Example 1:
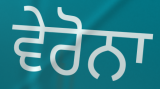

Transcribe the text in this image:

ਵੇਰੋਨਾ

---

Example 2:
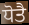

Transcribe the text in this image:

ਧੋਤੈ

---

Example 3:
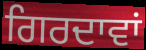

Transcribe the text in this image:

ਗਿਰਦਾਵਾਂ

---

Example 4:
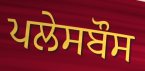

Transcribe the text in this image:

ਪਲੇਸਬੌਸ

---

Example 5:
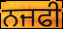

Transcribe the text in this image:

ਨਜਫੀ